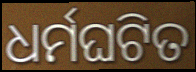
ଧର୍ମଘଟିତ